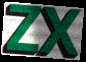
ZX